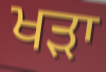
ਖਡ਼ਾ